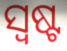
ସ୍ୱଷ୍ଟ